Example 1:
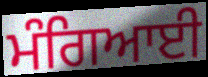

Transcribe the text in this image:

ਮੰਗਿਆਈ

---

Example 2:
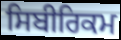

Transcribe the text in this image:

ਸਿਬੀਰਿਕਮ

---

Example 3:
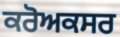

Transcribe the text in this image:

ਕਰੋਅਕਸਰ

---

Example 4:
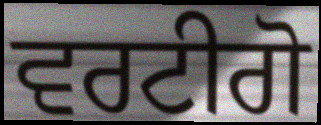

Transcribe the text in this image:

ਵਰਟੀਗੋ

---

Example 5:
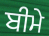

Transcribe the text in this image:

ਬੀਮੇ